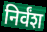
निर्वंश